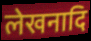
लेखनादि